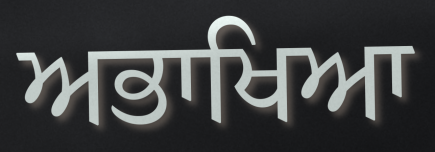
ਅਭਾਖਿਆ